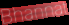
Bhannat